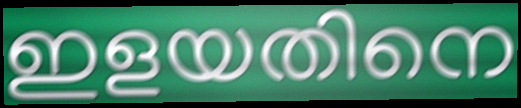
ഇളയതിനെ